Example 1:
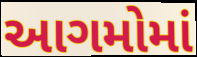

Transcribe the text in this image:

આગમોમાં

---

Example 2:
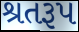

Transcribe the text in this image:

શ્રતરૂપ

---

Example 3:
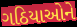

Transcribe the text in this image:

ગઠિયાઓને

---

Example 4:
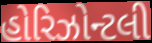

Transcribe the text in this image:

હોરિઝોન્ટલી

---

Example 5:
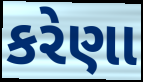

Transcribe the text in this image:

કરેણા